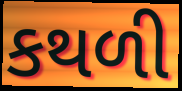
કથળી